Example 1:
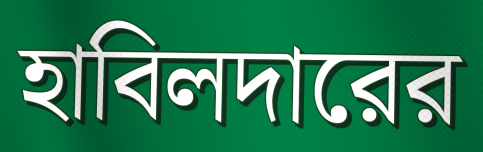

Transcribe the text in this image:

হাবিলদারের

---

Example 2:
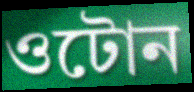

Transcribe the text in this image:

ওটোন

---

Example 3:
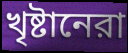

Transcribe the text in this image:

খৃষ্টানেরা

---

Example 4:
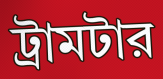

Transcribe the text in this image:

ট্রামটার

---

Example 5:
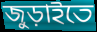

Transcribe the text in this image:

জুড়াইতে